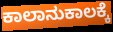
ಕಾಲಾನುಕಾಲಕ್ಕೆ